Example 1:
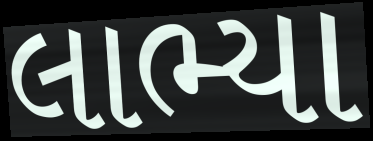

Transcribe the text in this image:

લાભ્યા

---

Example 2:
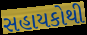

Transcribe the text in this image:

સહાયકોથી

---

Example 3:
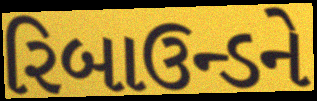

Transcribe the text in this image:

રિબાઉન્ડને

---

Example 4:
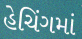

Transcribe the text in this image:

હેચિંગમાં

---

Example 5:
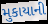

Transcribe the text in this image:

મુકાયાની